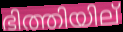
ഭിത്തിയില്